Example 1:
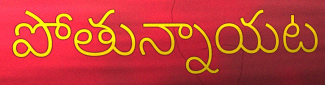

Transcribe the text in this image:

పోతున్నాయట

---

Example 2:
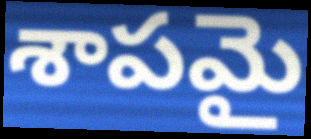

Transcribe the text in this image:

శాపమై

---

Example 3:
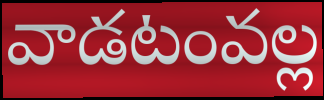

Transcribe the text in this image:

వాడటంవల్ల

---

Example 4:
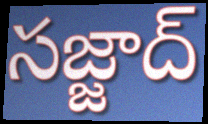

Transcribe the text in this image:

సజ్జాద్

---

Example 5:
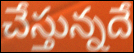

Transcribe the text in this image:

చేస్తున్నదే